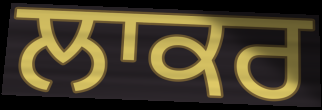
ਲਾਕਰ